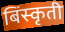
बिंस्कृती